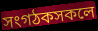
সংগঠকসকলে